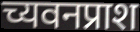
च्यवनप्राश